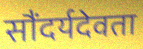
सौंदर्यदेवता